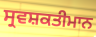
ਸ੍ਰਵਸ਼ਕਤੀਮਾਨ